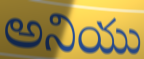
అనియు